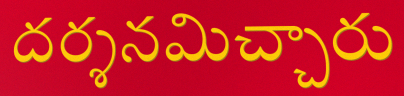
దర్శనమిచ్చారు